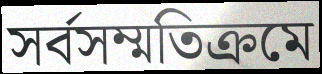
সর্বসম্মতিক্রমে